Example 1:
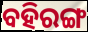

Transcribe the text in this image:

ବହିରଙ୍ଗ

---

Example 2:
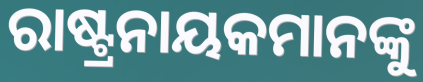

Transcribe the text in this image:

ରାଷ୍ଟ୍ରନାୟକମାନଙ୍କୁ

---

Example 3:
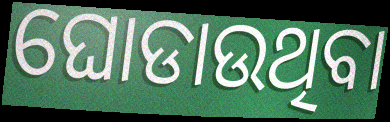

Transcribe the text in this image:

ଘୋଡାଉଥିବା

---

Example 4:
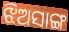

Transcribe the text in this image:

ଝିଅସାଙ୍ଗ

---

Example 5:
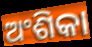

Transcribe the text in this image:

ଅଂଶିକା